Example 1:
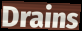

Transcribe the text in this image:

Drains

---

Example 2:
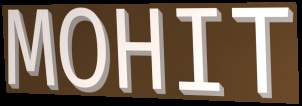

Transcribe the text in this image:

MOHIT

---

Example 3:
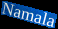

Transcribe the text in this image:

Namala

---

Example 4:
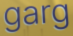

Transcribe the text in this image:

garg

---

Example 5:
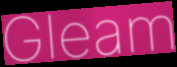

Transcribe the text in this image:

Gleam